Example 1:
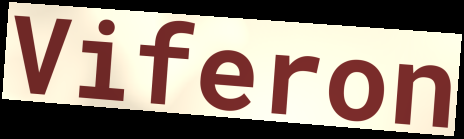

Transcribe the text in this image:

Viferon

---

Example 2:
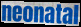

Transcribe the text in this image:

neonatal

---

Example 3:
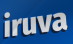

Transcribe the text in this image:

iruva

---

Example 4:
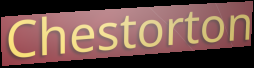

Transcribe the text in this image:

Chestorton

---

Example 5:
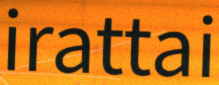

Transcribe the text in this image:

irattai